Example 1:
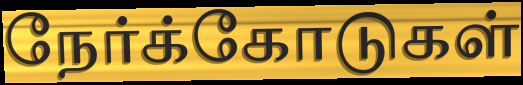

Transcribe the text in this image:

நேர்க்கோடுகள்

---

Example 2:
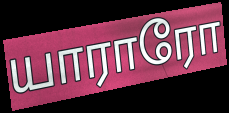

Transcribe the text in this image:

யாராரோ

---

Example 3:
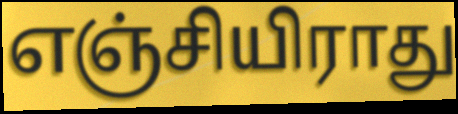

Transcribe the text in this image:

எஞ்சியிராது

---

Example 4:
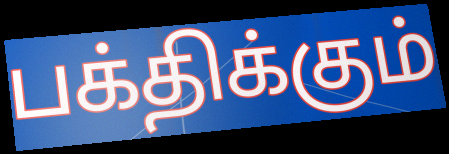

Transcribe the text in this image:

பக்திக்கும்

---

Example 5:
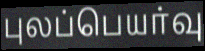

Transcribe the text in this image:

புலப்பெயர்வு